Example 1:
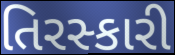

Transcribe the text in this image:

તિરસ્કારી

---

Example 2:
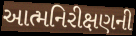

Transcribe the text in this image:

આત્મનિરીક્ષણની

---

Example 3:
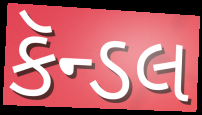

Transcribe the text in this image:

કૅન્ડલ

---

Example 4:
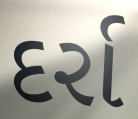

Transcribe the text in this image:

દર્રા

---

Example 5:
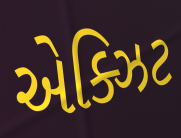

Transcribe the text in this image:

એક્ઝિટ